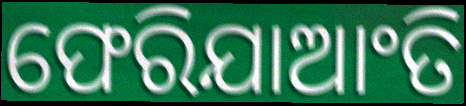
ଫେରିଯାଆଂତି